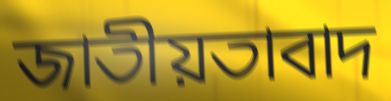
জাতীয়তাবাদ